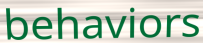
behaviors